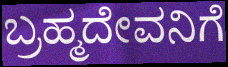
ಬ್ರಹ್ಮದೇವನಿಗೆ